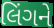
લિંગને